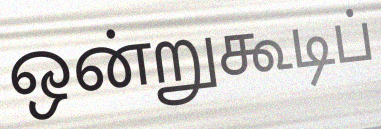
ஒன்றுகூடிப்